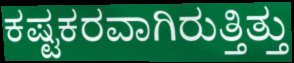
ಕಷ್ಟಕರವಾಗಿರುತ್ತಿತ್ತು